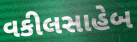
વકીલસાહેબ